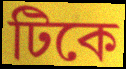
টিকে